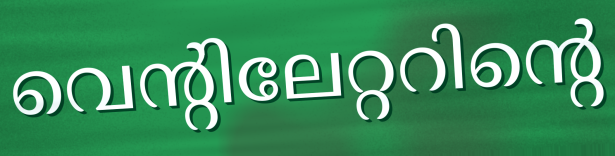
വെന്റിലേറ്ററിന്റെ